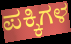
ಪಕ್ಕಿಗಳ